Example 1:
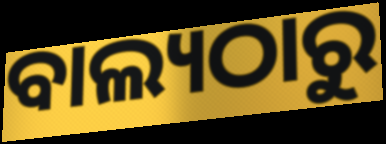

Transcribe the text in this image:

ବାଲ୍ୟଠାରୁ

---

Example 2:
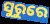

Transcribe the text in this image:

ସୁରୁରେ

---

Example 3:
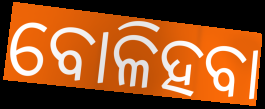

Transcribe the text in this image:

ବୋଳିହବା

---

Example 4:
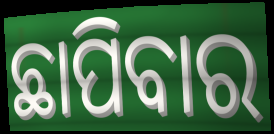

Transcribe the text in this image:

ଛାପିବାର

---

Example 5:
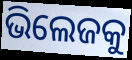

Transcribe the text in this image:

ଭିଲେଜକୁ